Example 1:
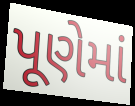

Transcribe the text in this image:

પૂણેમાં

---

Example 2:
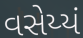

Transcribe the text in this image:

વસેય્યં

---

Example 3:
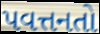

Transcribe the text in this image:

પવત્તનતો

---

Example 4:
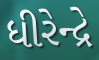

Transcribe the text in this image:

ધીરેન્દ્રે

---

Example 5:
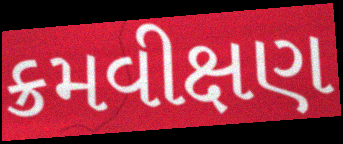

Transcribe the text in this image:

ક્રમવીક્ષણ